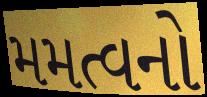
મમત્વનો